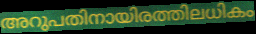
അറുപതിനായിരത്തിലധികം